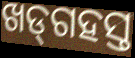
ଖଡ୍‌ଗହସ୍ତ